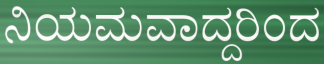
ನಿಯಮವಾದ್ದರಿಂದ